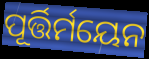
ପୂର୍ତ୍ତିର୍ମୟେନ